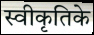
स्वीकृतिके